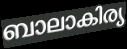
ബാലാകിര്യ